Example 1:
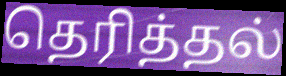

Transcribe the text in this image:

தெரித்தல்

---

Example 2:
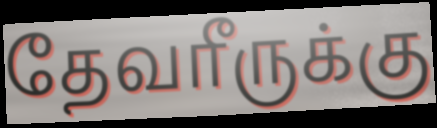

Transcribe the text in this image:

தேவரீருக்கு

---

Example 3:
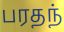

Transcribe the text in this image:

பரதந்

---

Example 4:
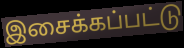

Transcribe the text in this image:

இசைக்கப்பட்டு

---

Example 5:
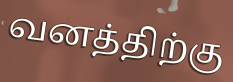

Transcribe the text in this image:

வனத்திற்கு